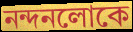
নন্দনলোকে